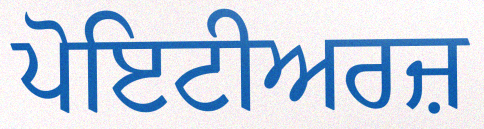
ਪੋਇਟੀਅਰਜ਼